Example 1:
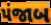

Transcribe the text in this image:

પંજાબ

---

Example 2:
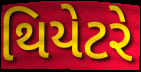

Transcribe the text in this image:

થિયેટરે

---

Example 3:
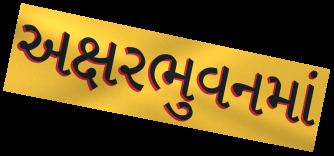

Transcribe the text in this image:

અક્ષરભુવનમાં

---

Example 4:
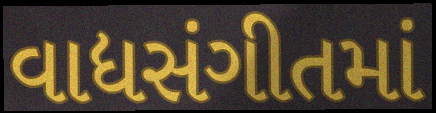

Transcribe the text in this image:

વાદ્યસંગીતમાં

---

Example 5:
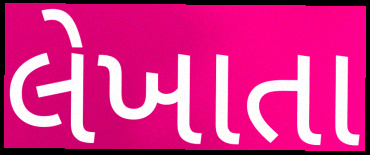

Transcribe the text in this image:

લેખાતા